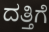
ದತ್ತಿಗೆ